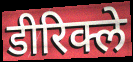
डीरिक्ले